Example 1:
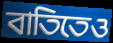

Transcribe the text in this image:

বাতিতেও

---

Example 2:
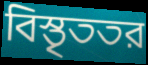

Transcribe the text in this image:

বিস্তৃততর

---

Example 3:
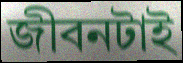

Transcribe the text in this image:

জীবনটাই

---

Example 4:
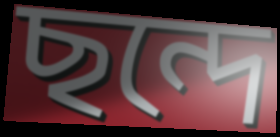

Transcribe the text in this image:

ছন্দে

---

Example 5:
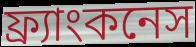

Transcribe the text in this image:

ফ্র্যাংকনেস